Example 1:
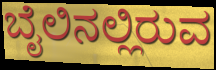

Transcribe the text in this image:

ಬೈಲಿನಲ್ಲಿರುವ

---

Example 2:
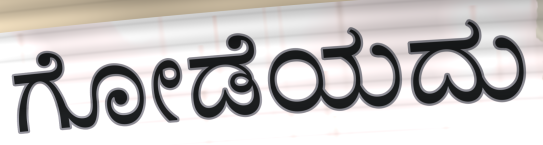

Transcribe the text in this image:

ಗೋಡೆಯದು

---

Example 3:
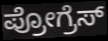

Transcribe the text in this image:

ಪ್ರೋಗ್ರೆಸ್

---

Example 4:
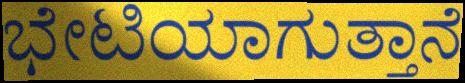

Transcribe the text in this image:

ಭೇಟಿಯಾಗುತ್ತಾನೆ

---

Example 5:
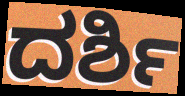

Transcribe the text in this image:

ದರ್ಶಿ